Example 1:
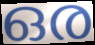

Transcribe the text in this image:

ഒര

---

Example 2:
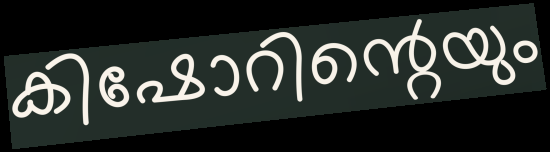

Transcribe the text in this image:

കിഷോറിന്റെയും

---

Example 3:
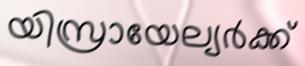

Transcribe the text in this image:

യിസ്രായേല്യർക്ക്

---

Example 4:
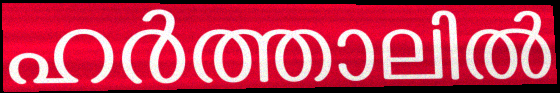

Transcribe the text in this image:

ഹർത്താലിൽ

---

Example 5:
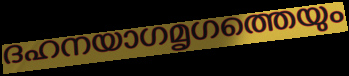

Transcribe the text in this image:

ദഹനയാഗമൃഗത്തെയും